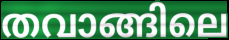
തവാങ്ങിലെ